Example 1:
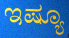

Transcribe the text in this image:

ಇಷ್ಯೂ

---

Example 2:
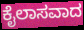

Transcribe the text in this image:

ಕೈಲಾಸವಾದ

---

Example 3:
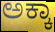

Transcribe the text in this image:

ಅಕ್ಕಾ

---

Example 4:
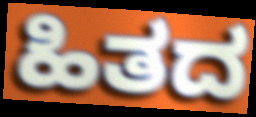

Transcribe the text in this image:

ಹಿತದ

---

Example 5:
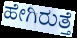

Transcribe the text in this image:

ಹೇಗಿರುತ್ತೆ